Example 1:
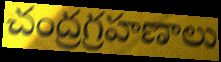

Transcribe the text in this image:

చంద్రగ్రహణాలు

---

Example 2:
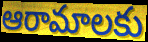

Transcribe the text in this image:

ఆరామాలకు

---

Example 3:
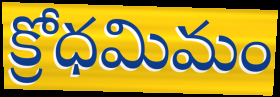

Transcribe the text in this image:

క్రోధమిమం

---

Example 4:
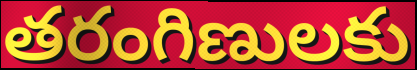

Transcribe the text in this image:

తరంగిణులకు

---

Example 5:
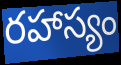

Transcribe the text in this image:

రహాస్యం